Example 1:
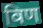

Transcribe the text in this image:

विण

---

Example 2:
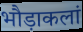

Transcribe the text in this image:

भौड़ाकलां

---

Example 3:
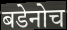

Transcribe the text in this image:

बडेनोच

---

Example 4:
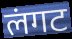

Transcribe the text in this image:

लंगट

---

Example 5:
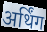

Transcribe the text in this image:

अर्थिंग